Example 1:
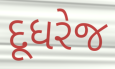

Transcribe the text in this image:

દૂધરેજ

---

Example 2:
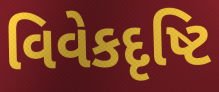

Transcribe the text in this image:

વિવેકદૃષ્ટિ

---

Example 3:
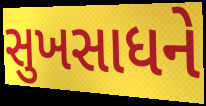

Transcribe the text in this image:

સુખસાધને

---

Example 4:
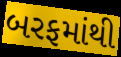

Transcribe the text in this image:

બરફમાંથી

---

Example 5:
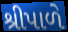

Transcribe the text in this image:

શ્રીપાળે